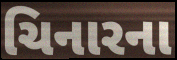
ચિનારના